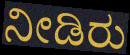
ನೀಡಿರು